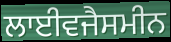
ਲਾਈਵਜੈਸਮੀਨ